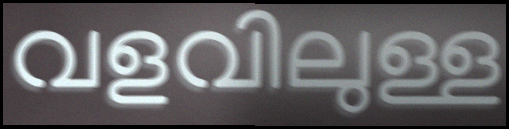
വളവിലുള്ള